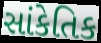
સાંકેતિક